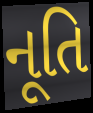
નૂતિ